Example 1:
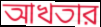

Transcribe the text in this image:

আখতার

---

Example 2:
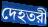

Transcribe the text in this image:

দেহতরী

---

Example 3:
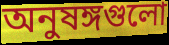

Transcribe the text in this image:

অনুষঙ্গগুলো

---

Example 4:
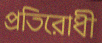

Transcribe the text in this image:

প্রতিরোধী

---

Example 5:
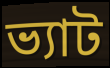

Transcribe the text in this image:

ভ্যাট